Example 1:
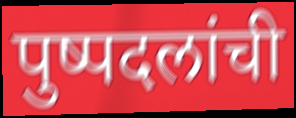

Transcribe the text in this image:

पुष्पदलांची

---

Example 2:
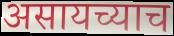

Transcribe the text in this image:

असायच्याच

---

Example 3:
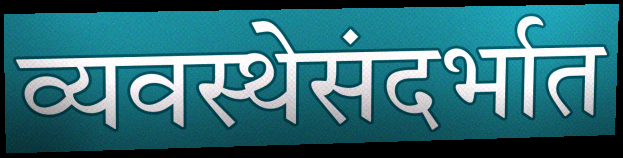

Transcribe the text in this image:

व्यवस्थेसंदर्भात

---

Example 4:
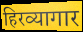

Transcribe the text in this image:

हिरव्यागार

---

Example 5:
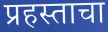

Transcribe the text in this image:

प्रहस्ताचा